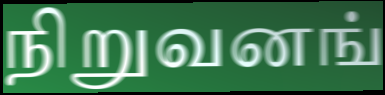
நிறுவனங்